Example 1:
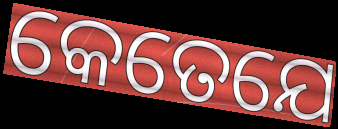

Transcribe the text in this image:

କେତେଯେ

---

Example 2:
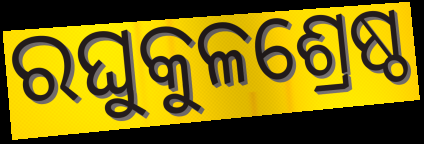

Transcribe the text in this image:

ରଘୁକୁଳଶ୍ରେଷ୍ଠ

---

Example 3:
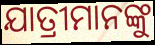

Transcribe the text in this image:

ଯାତ୍ରୀମାନଙ୍କୁ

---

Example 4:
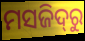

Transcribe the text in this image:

ମସଜିଦ୍‌ରୁ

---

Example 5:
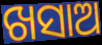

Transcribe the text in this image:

ଖସାଅ